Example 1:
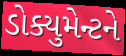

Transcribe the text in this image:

ડોક્યુમેન્ટને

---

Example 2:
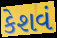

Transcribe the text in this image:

કેશવં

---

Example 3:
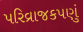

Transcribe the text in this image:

પરિવ્રાજકપણું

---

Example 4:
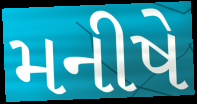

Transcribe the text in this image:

મનીષે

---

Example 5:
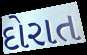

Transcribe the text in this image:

દોરાત